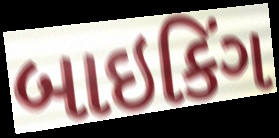
બાઇકિંગ